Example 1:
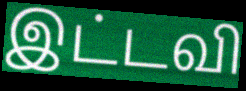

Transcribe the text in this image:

இட்டவி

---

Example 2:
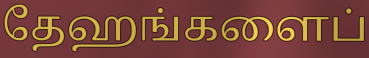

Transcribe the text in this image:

தேஹங்களைப்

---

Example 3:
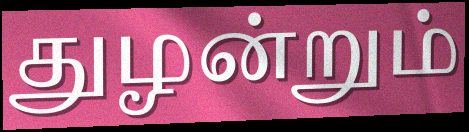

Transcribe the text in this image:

துழன்றும்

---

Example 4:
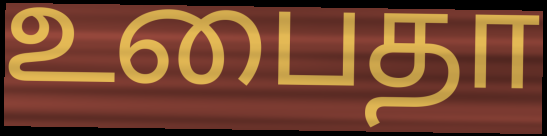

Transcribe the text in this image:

உபைதா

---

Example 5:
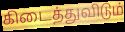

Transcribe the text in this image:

கிடைத்துவிடும்